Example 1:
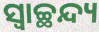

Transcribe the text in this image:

ସ୍ୱାଚ୍ଛନ୍ଦ୍ୟ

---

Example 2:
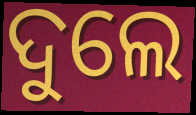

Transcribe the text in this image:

ଦୁଲେ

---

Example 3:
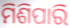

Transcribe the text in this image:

ମିଶିପାରି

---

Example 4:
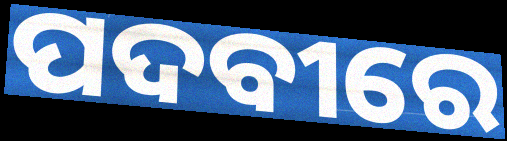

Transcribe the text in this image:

ପଦବୀରେ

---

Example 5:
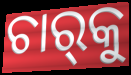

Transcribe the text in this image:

ଚାର୍‌କୁ